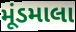
મૂંડમાલા